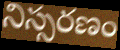
నిస్సరణం